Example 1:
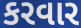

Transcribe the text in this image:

કરવાર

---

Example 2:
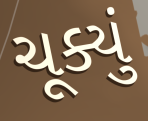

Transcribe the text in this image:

ચૂક્યું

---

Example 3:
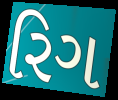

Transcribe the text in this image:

રિગ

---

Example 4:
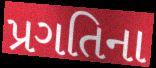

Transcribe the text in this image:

પ્રગતિના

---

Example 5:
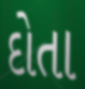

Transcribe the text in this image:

દોતા